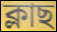
ক্লাছ